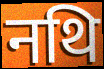
नथि